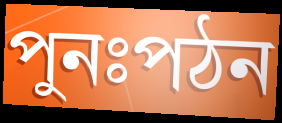
পুনঃপঠন